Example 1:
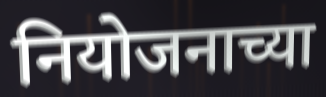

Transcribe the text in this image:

नियोजनाच्या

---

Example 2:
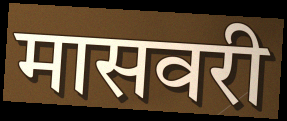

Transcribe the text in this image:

मासवरी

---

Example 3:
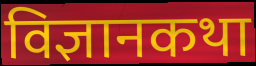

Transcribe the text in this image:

विज्ञानकथा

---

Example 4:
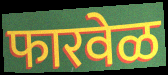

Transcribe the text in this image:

फारवेळ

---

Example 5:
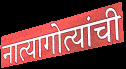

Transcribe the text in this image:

नात्यागोत्यांची